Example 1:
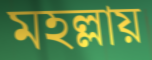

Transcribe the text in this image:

মহল্লায়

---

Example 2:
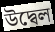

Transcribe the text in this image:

উদ্বেল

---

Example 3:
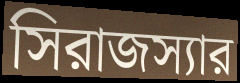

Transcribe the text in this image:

সিরাজস্যার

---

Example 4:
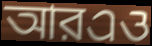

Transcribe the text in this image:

আরএও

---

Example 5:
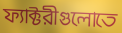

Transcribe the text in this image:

ফ্যাক্টরীগুলোতে